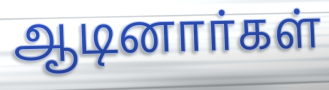
ஆடினார்கள்